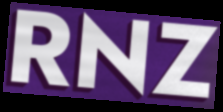
RNZ